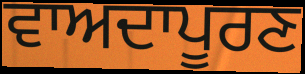
ਵਾਅਦਾਪੂਰਣ